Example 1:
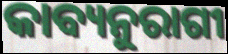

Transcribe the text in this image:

କାବ୍ୟନୁରାଗୀ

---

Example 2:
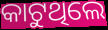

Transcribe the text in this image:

କାଟୁଥିଲେ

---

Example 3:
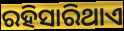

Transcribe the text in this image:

ରହିସାରିଥାଏ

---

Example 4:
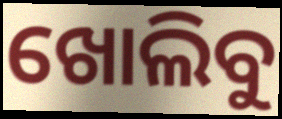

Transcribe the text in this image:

ଖୋଲିବୁ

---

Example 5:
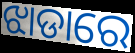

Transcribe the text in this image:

ଝାଡାରେ